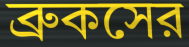
ব্রুকসের